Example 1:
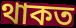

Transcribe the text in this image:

থাকত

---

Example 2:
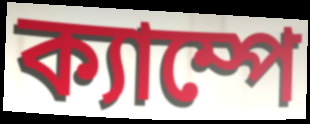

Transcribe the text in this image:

ক্যাম্পে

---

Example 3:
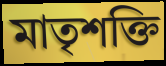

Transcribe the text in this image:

মাতৃশক্তি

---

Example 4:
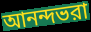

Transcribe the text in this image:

আনন্দভরা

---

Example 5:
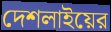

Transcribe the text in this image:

দেশলাইয়ের